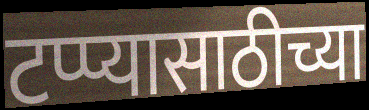
टप्प्यासाठीच्या